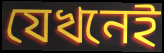
যেখনেই